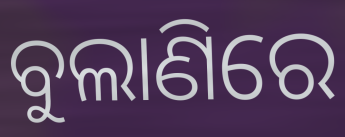
ବୁଲାଣିରେ